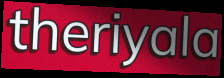
theriyala